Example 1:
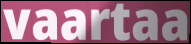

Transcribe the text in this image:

vaartaa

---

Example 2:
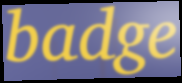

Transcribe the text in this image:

badge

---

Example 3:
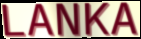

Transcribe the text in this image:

LANKA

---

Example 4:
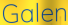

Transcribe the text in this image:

Galen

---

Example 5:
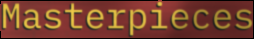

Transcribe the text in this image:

Masterpieces